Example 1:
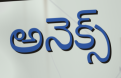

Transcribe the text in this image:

అనెక్స్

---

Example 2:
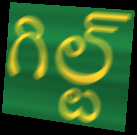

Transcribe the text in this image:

గిల్ట్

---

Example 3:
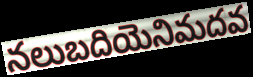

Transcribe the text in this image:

నలుబదియెనిమదవ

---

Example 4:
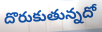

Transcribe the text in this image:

దొరుకుతున్నదో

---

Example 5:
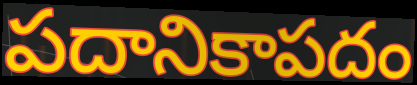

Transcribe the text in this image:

పదానికాపదం